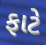
ફાટે